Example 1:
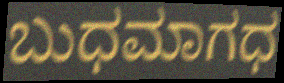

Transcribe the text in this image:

ಬುಧಮಾಗಧ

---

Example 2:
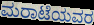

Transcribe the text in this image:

ಮರಾಟೆಯವರ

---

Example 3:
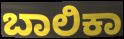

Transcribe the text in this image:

ಬಾಲಿಕಾ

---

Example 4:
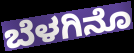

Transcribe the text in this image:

ಬೆಳಗಿನೊ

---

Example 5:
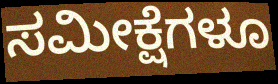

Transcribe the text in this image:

ಸಮೀಕ್ಷೆಗಳೂ